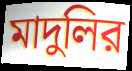
মাদুলির